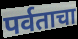
पर्वताचा